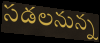
సడలనున్న